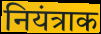
नियंत्राक